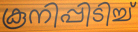
കൂനിപ്പിടിച്ച്